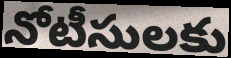
నోటీసులకు